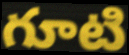
గూటి